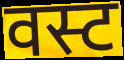
वस्ट